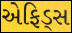
એફિડ્સ